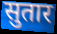
सुतार